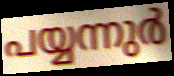
പയ്യന്നുർ